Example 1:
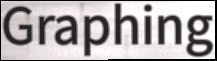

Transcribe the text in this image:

Graphing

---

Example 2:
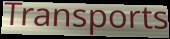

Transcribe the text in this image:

Transports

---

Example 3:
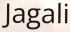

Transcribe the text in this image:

Jagali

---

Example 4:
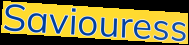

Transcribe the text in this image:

Saviouress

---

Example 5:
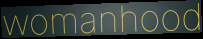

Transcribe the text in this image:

womanhood